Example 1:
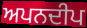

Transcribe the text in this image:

ਅਪਨਦੀਪ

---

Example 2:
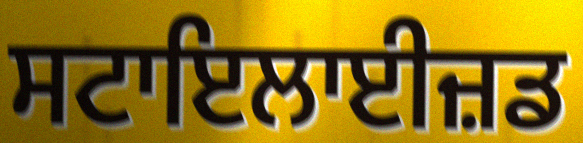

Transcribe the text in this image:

ਸਟਾਇਲਾਈਜ਼ਡ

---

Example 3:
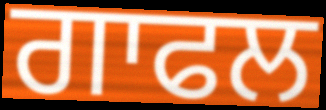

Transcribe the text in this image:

ਗਾਫਲ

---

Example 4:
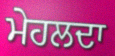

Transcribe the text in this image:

ਮੇਹਲਦਾ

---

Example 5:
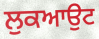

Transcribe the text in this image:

ਲੁਕਆਉਟ